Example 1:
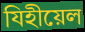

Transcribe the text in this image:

যিহীয়েল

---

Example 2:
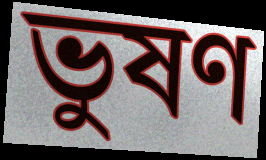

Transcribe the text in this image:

ভুষণ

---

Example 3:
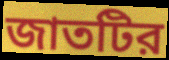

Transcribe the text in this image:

জাতটির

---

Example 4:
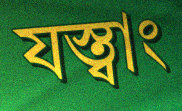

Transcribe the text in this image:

যস্ত্বাং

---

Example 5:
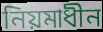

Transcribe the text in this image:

নিয়মাধীন